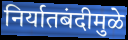
निर्यातबंदीमुळे